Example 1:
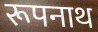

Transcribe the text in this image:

रूपनाथ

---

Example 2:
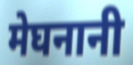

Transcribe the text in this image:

मेघनानी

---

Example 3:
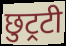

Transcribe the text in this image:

छुट्रटी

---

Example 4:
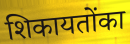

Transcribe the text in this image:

शिकायतोंका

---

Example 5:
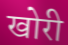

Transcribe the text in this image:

खोरी